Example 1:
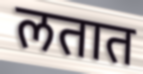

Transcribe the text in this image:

लतात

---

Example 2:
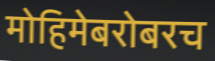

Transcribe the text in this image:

मोहिमेबरोबरच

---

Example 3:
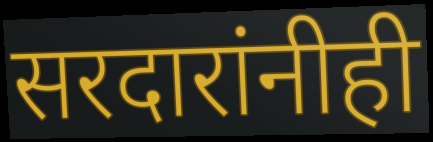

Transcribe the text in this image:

सरदारांनीही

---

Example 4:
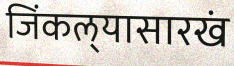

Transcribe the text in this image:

जिंकल्यासारखं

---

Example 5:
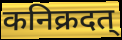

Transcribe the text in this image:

कनिक्रदत्